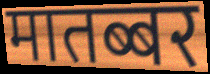
मातब्बर